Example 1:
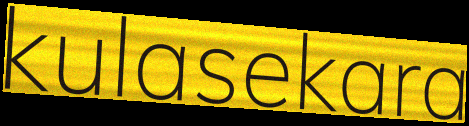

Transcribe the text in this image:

kulasekara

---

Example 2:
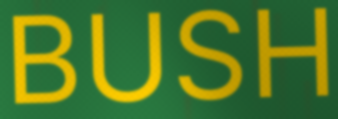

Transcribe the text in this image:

BUSH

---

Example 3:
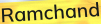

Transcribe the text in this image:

Ramchand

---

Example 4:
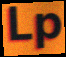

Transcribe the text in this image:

Lp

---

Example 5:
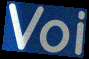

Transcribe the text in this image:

Voi